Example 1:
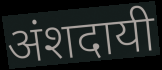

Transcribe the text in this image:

अंशदायी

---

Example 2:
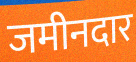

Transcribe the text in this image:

जमीनदार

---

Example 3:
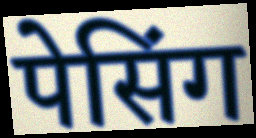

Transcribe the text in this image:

पेसिंग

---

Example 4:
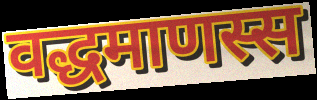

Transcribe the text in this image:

वद्धमाणस्स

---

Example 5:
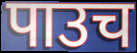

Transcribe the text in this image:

पाउच